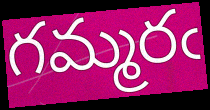
గమ్మరఁ